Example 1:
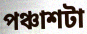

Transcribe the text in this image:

পঞ্চাশটা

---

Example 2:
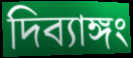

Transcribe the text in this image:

দিব্যাঙ্গং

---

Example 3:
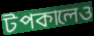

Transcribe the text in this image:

টপকালেও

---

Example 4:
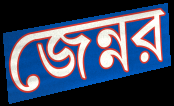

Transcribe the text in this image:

জেন্নর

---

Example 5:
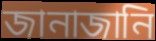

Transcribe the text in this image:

জানাজানি